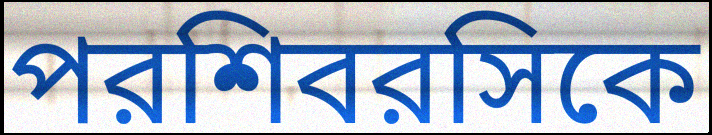
পরশিবরসিকে